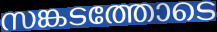
സങ്കടത്തോടെ